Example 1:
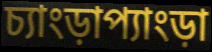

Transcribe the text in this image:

চ্যাংড়াপ্যাংড়া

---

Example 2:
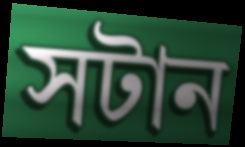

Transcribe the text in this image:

সটান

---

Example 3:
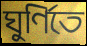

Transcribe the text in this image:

ঘুর্ণিতে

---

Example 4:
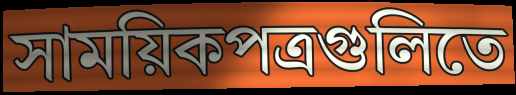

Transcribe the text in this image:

সাময়িকপত্রগুলিতে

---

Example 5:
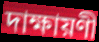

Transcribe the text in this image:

দাক্ষায়ণী